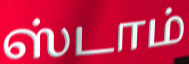
ஸ்டாம்